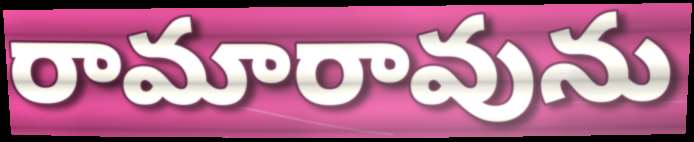
రామారావును